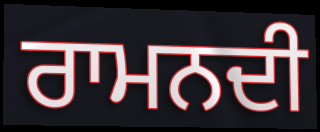
ਰਾਮਨਦੀ